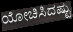
ಯೋಚಿಸಿದಷ್ಟು